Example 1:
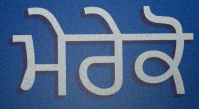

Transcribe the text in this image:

ਮੇਰੇਕੋ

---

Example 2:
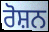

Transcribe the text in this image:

ਰੋਸ਼ਨ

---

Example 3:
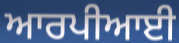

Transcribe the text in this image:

ਆਰਪੀਆਈ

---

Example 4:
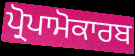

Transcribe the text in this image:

ਪ੍ਰੋਪਾਮੋਕਾਰਬ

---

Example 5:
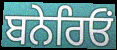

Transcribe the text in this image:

ਬਨੇਰਿਓਂ